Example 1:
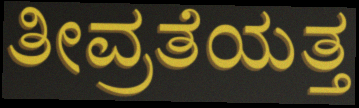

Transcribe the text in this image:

ತೀವ್ರತೆಯತ್ತ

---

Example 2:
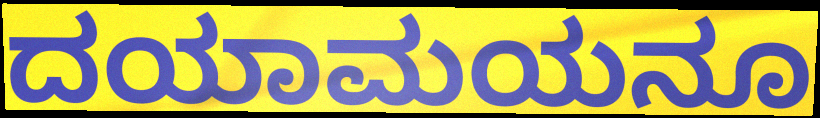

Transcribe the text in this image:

ದಯಾಮಯನೂ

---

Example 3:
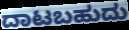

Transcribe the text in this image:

ದಾಟಬಹುದು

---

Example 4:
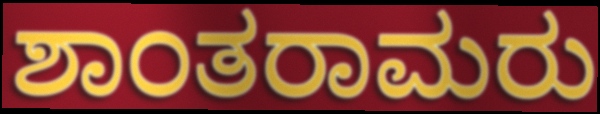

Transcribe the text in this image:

ಶಾಂತರಾಮರು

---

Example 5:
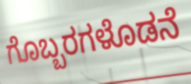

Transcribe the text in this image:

ಗೊಬ್ಬರಗಳೊಡನೆ